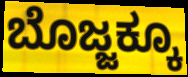
ಬೊಜ್ಜಕ್ಕೂ